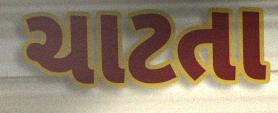
ચાટતા